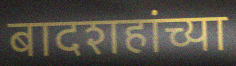
बादशहांच्या